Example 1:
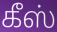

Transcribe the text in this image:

கீஸ்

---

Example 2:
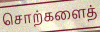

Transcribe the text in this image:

சொற்களைத்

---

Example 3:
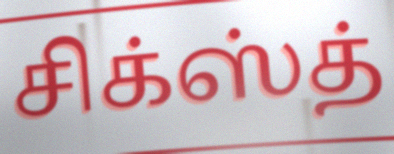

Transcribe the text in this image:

சிக்ஸ்த்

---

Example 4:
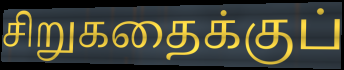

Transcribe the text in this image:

சிறுகதைக்குப்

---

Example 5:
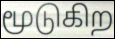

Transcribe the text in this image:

மூடுகிற